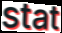
stat